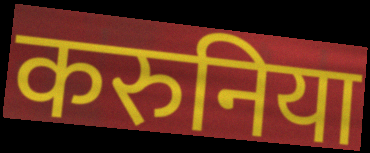
करुनिया